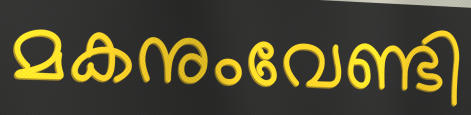
മകനുംവേണ്ടി